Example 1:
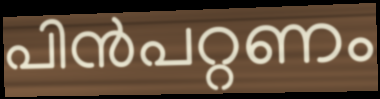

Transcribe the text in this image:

പിൻപറ്റണം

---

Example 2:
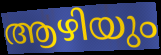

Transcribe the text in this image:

ആഴിയും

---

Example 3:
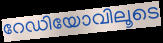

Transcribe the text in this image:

റേഡിയോവിലൂടെ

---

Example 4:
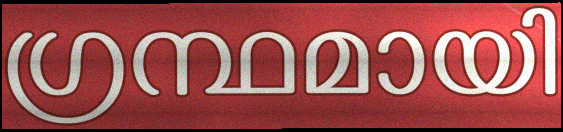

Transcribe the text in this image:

ഗ്രന്ഥമായി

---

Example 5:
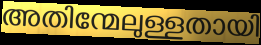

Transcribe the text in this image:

അതിന്മേലുള്ളതായി